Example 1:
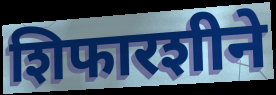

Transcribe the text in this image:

शिफारशीने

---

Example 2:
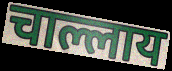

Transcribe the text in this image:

चाल्लाय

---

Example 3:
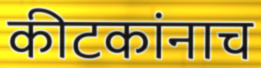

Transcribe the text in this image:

कीटकांनाच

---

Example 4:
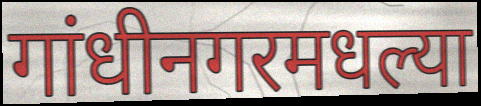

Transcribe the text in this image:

गांधीनगरमधल्या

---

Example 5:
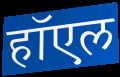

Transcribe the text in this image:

हॉएल